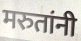
मरुतांनी